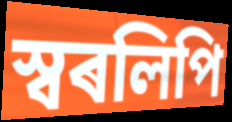
স্বৰলিপি